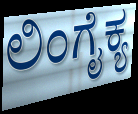
ಲಿಂಗೈಕ್ಯ